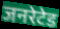
जनरेटेड